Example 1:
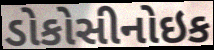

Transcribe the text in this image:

ડોકોસીનોઇક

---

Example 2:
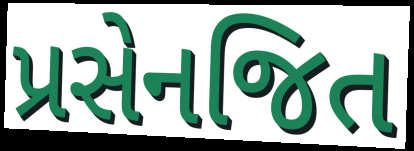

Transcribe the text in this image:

પ્રસેનજિત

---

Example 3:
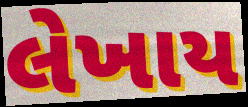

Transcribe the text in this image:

લેખાય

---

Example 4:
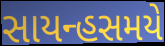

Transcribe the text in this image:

સાયન્હસમયે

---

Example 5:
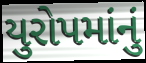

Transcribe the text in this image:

યુરોપમાંનું